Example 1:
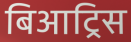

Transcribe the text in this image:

बिआट्रिस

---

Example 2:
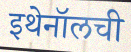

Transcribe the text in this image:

इथेनॉलची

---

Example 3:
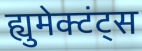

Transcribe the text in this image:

ह्युमेक्टंट्स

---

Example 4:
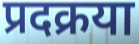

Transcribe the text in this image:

प्रदक्रया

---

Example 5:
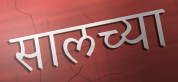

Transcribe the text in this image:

सालच्या